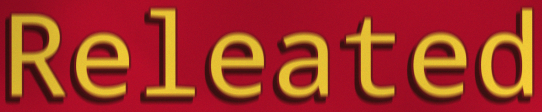
Releated